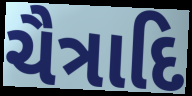
ચૈત્રાદિ